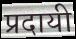
प्रदायी